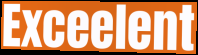
Exceelent